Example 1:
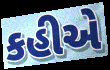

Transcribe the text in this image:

કહીએ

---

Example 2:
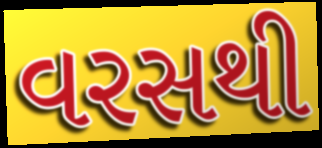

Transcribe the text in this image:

વરસથી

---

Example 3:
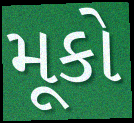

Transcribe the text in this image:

મૂકો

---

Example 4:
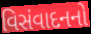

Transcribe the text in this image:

વિસંવાદનનો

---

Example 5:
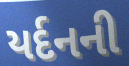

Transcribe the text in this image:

યર્દનની